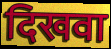
दिखवा